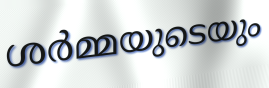
ശർമ്മയുടെയും